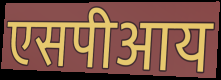
एसपीआय